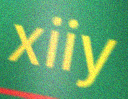
xiiy